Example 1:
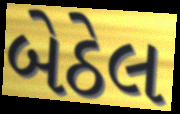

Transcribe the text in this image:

બેઠેલ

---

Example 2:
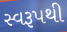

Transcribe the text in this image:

સ્વરૂપથી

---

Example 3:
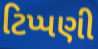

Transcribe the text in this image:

ટિપ્પણી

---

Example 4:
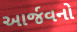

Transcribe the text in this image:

આર્જવનો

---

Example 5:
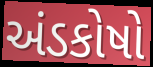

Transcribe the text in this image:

અંડકોષો